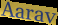
Aarav